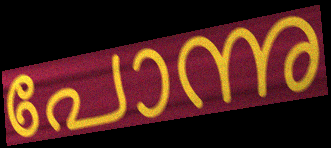
പോന്നു